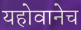
यहोवानेच